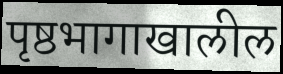
पृष्ठभागाखालील